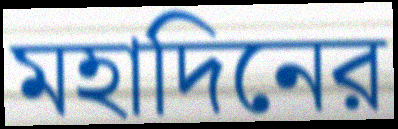
মহাদিনের